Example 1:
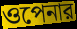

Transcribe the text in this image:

ওপেনার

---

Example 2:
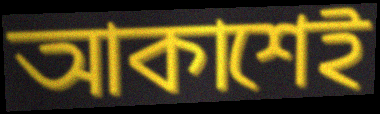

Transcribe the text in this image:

আকাশেই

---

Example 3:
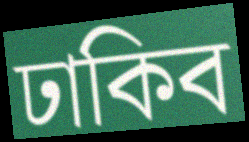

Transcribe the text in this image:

ঢাকিব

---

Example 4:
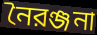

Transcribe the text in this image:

নৈরঞ্জনা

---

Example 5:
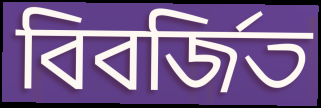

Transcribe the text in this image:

বিবর্জিত